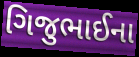
ગિજુભાઈના